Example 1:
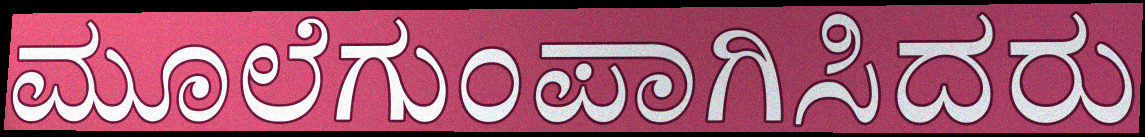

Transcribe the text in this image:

ಮೂಲೆಗುಂಪಾಗಿಸಿದರು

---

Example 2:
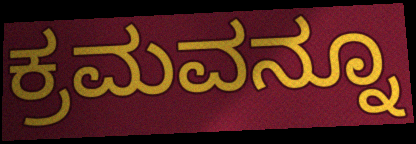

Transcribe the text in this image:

ಕ್ರಮವನ್ನೂ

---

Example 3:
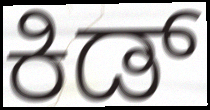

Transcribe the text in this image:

ಕಿಡ್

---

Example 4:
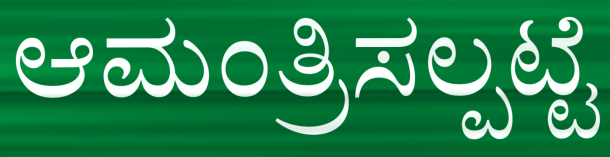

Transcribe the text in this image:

ಆಮಂತ್ರಿಸಲ್ಪಟ್ಟೆ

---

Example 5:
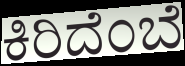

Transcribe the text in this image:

ಕಿರಿದೆಂಬೆ